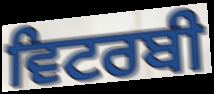
ਵਿਟਰਬੀ